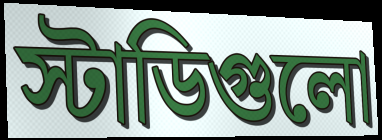
স্টাডিগুলো